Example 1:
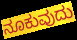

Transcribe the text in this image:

ನೂಕುವುದು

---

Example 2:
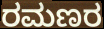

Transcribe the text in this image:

ರಮಣರ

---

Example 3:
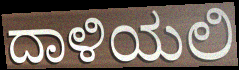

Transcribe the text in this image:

ದಾಳಿಯಲಿ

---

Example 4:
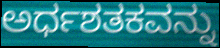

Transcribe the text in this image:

ಅರ್ಧಶತಕವನ್ನು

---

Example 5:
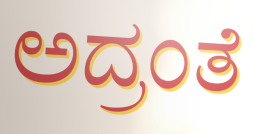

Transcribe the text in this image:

ಅದ್ರಂತೆ